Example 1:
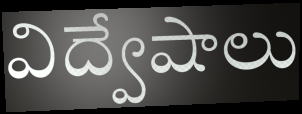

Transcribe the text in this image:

విద్వేషాలు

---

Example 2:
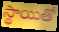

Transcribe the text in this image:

స్థాయితో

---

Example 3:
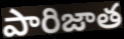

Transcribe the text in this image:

పారిజాత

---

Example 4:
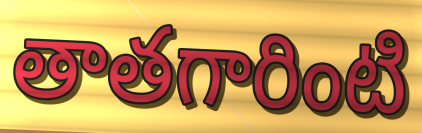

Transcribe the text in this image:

తాతగారింటి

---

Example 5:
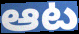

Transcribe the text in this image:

ఆట